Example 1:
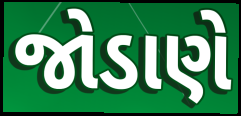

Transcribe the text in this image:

જોડાણે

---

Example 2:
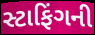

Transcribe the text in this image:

સ્ટાફિંગની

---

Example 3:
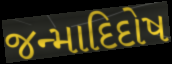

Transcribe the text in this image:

જન્માદિદોષ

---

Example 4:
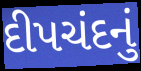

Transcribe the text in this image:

દીપચંદનું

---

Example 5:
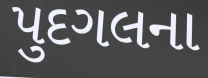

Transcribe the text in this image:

પુદગલના